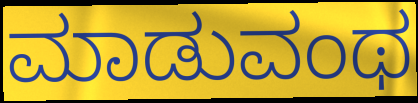
ಮಾಡುವಂಥ